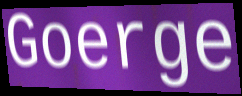
Goerge